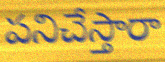
పనిచేస్తారా